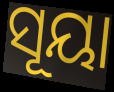
ସୂୟା